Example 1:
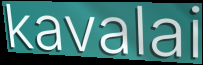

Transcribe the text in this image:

kavalai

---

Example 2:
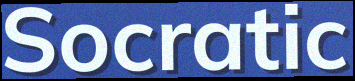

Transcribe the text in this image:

Socratic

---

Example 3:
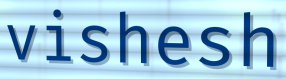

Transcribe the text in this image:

vishesh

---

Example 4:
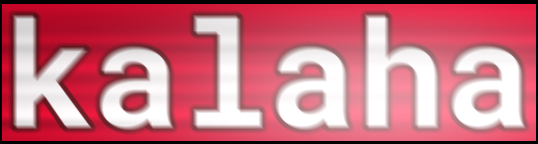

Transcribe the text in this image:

kalaha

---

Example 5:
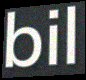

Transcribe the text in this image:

bil